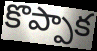
కొప్పాక